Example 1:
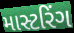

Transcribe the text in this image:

માસ્ટરિંગ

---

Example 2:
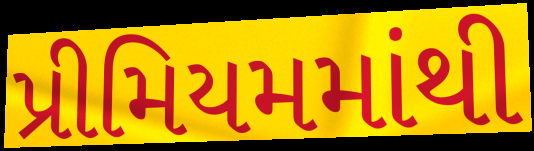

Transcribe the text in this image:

પ્રીમિયમમાંથી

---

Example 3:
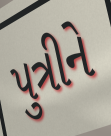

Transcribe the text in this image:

પુત્રીને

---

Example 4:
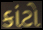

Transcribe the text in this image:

કાંટો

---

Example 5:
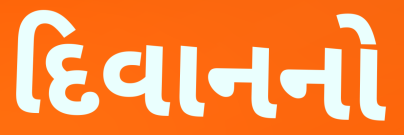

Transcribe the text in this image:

દિવાનનો